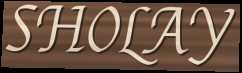
SHOLAY